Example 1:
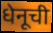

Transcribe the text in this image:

धेनूची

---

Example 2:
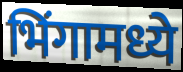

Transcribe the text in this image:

भिंगामध्ये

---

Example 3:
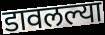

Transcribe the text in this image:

डावलल्या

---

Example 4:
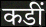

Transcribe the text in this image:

कडीं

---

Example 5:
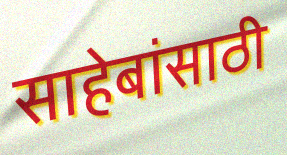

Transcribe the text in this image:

साहेबांसाठी